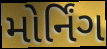
મોર્નિંગ